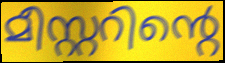
മീസ്റ്ററിന്റെ